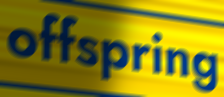
offspring